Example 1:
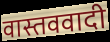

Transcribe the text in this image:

वास्तववादी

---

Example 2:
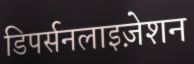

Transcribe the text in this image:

डिपर्सनलाइज़ेशन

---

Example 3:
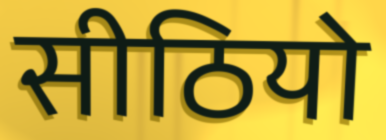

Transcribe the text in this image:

सीठियो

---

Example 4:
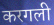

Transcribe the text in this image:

करगली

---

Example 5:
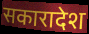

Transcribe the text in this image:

सकारादेश